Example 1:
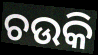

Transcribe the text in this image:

ଚଉକି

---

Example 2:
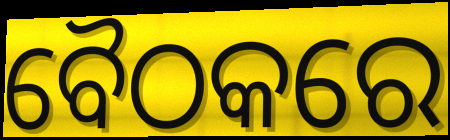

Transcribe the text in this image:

ବୈଠକରେ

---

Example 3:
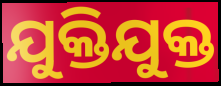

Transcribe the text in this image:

ଯୁକ୍ତିଯୁକ୍ତ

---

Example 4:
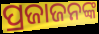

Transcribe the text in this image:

ପ୍ରଜାଜନଙ୍କ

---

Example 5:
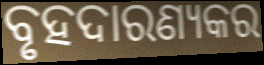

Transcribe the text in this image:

ବୃହଦାରଣ୍ୟକର